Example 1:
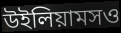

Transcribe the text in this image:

উইলিয়ামসও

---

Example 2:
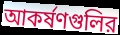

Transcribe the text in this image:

আকর্ষণগুলির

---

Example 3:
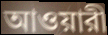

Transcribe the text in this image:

আওয়ারী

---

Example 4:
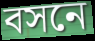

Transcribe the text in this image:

বসনে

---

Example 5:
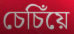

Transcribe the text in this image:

চেচিঁয়ে